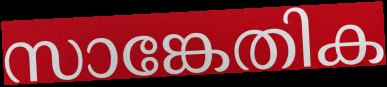
സാങ്കേതിക